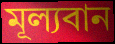
মূল্যবান